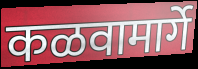
कळवामार्गे